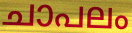
ചാപലം